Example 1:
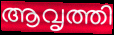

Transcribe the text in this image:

ആവൃത്തി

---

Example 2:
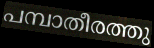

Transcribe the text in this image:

പമ്പാതീരത്തു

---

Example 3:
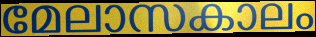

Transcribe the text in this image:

മേലാസകാലം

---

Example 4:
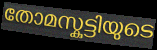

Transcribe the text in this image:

തോമസ്കുട്ടിയുടെ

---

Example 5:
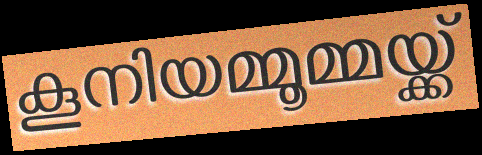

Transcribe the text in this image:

കൂനിയമ്മൂമ്മയ്ക്ക്